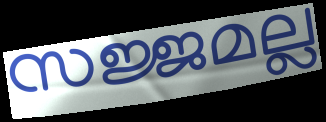
സജ്ജമല്ല